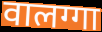
वालग्गा